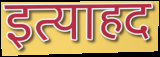
इत्याहद